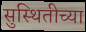
सुस्थितीच्या